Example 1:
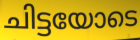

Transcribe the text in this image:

ചിട്ടയോടെ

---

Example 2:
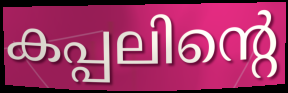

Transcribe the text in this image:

കപ്പലിന്റെ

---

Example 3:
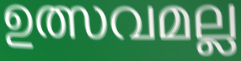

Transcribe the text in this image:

ഉത്സവമല്ല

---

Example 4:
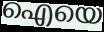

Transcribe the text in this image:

ഐയെ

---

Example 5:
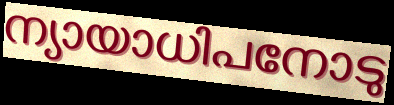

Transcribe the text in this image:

ന്യായാധിപനോടു